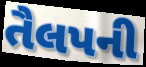
તૈલપની